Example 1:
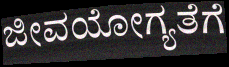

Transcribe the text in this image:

ಜೀವಯೋಗ್ಯತೆಗೆ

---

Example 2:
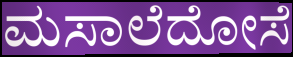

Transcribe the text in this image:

ಮಸಾಲೆದೋಸೆ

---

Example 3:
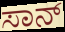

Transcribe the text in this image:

ಸಾನ್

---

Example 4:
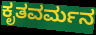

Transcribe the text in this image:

ಕೃತವರ್ಮನ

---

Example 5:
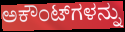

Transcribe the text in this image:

ಅಕೌಂಟ್‌ಗಳನ್ನು